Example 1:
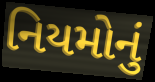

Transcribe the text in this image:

નિયમોનું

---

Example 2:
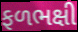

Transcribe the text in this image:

ફળભક્ષી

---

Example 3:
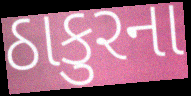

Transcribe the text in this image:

ઠાકુરના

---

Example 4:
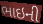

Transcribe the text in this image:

ભાઇની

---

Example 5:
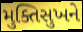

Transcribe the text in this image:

મુક્તિસુખને